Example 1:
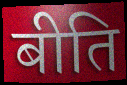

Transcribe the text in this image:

बीति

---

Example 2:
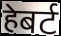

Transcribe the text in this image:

हेबर्ट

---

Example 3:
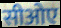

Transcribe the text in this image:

सीओए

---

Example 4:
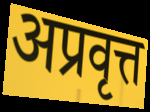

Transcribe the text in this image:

अप्रवृत्त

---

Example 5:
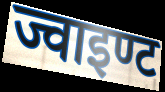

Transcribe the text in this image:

ज्वाइण्ट